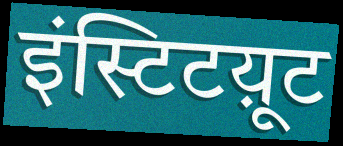
इंस्टिटय़ूट